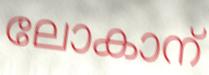
ലോകാന്